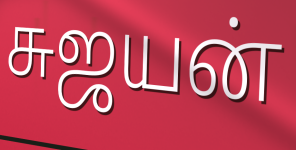
சுஜயன்